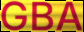
GBA